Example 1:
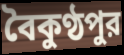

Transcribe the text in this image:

বৈকুণ্ঠপুর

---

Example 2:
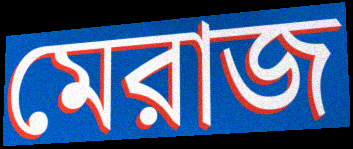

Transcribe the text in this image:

মেরাজ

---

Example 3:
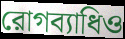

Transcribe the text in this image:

রোগব্যাধিও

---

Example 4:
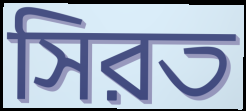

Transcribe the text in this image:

সিরত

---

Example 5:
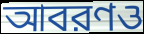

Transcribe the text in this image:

আবরণও